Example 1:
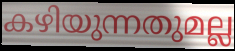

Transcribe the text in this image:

കഴിയുന്നതുമല്ല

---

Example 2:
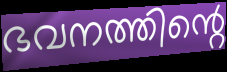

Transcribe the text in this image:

ഭവനത്തിന്റെ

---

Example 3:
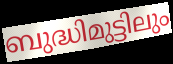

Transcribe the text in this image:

ബുദ്ധിമുട്ടിലും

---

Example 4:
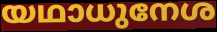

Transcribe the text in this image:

യഥാധുനേശ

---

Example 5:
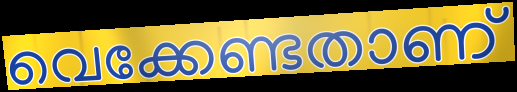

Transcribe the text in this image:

വെക്കേണ്ടതാണ്